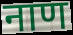
नाण